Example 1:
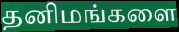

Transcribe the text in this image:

தனிமங்களை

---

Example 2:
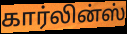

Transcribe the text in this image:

கார்லின்ஸ்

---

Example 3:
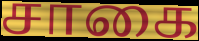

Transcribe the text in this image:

சாகை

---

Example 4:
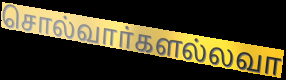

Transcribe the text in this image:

சொல்வார்களல்லவா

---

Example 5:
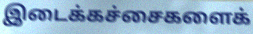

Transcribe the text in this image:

இடைக்கச்சைகளைக்